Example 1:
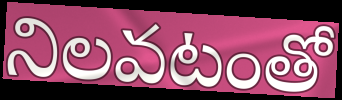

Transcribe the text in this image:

నిలవటంతో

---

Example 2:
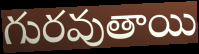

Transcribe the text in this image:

గురవుతాయి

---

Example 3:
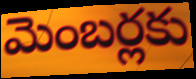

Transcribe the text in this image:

మెంబర్లకు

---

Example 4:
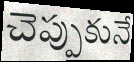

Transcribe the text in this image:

చెప్పుకునే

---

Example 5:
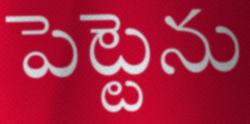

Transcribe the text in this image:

పెట్టెను